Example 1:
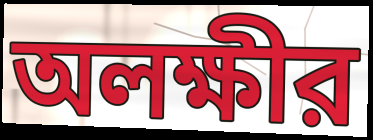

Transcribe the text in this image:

অলক্ষীর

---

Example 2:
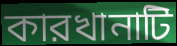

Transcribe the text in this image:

কারখানাটি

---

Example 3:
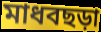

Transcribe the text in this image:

মাধবছড়া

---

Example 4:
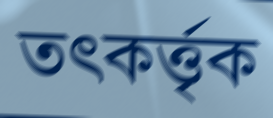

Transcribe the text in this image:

তৎকর্ত্তৃক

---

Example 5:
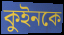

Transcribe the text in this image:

কুইনকে